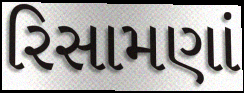
રિસામણાં